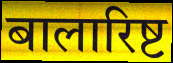
बालारिष्ट